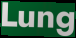
Lung